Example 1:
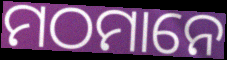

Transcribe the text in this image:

ମଠମାନେ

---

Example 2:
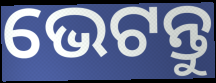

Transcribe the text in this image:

ଭେଟନ୍ତୁ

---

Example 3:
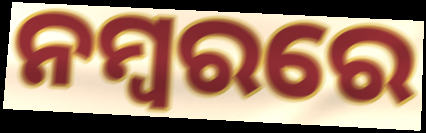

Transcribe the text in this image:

ନମ୍ବରରେ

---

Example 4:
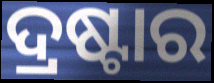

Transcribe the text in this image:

ଦ୍ରଷ୍ଟାର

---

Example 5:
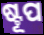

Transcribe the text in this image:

ଷ୍ଟୂପ